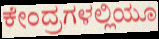
ಕೇಂದ್ರಗಳಲ್ಲಿಯೂ